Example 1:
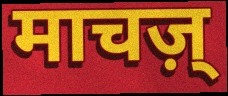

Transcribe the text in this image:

माचज़्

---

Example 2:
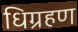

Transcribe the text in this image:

धिग्रहण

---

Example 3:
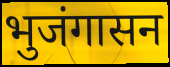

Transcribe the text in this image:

भुजंगासन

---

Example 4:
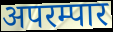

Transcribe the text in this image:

अपरम्पार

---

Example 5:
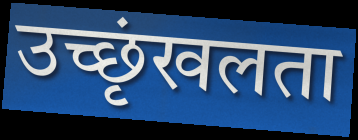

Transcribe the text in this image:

उच्छृंखलता